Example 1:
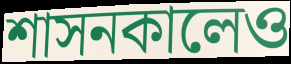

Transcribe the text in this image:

শাসনকালেও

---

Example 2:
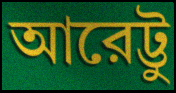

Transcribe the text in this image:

আরেট্টু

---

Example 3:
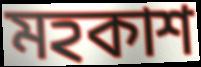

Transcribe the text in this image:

মহকাশ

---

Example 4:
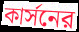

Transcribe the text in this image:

কার্সনের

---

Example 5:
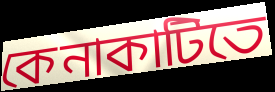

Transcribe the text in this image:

কেনাকাটিতে